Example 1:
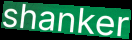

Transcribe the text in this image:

shanker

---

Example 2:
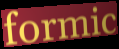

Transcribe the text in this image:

formic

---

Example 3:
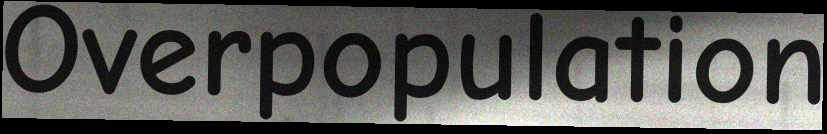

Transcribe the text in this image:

Overpopulation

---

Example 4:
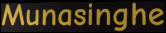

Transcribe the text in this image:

Munasinghe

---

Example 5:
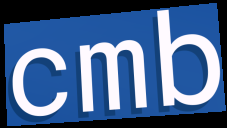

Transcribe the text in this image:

cmb